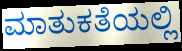
ಮಾತುಕತೆಯಲ್ಲಿ